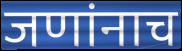
जणांनाच